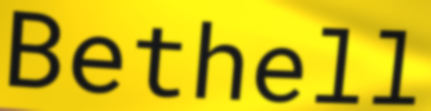
Bethell